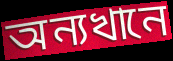
অন্যখানে